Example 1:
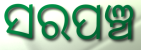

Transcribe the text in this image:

ସରପଞ୍ଚ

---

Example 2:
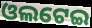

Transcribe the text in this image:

ଓଲଟେଇ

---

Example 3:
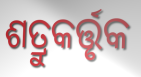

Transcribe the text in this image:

ଶତ୍ରୁକର୍ତ୍ତୃକ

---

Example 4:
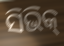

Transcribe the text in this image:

ସିଭିକ୍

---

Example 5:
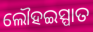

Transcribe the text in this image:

ଲୌହଇସ୍ପାତ